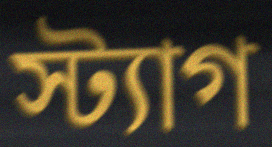
স্ট্যাগ